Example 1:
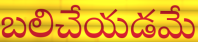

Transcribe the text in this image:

బలిచేయడమే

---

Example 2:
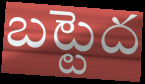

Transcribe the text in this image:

బట్టెద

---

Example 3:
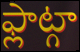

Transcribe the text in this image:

ఫ్లాట్గా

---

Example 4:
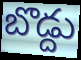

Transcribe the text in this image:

బొడ్దు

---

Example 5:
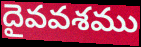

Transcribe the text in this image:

దైవవశము